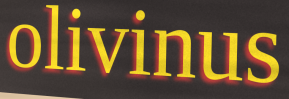
olivinus